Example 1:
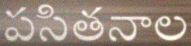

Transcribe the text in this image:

పసితనాల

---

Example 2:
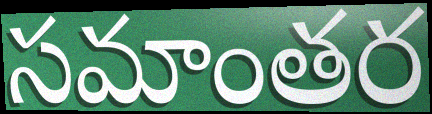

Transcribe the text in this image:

సమాంతర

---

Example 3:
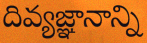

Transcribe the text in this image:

దివ్యజ్ఞానాన్ని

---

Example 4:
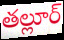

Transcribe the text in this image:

తల్లూర్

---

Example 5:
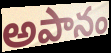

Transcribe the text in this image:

అపానం